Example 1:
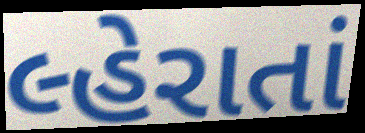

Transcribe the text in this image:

લ્હેરાતાં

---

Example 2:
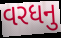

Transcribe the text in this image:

વરધનુ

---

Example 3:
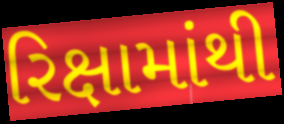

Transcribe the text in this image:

રિક્ષામાંથી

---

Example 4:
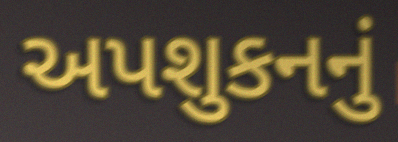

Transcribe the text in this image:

અપશુકનનું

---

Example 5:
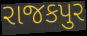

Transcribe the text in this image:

રાજકપુર